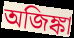
অজিঙ্কা